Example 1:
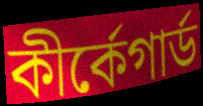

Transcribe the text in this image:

কীর্কেগার্ড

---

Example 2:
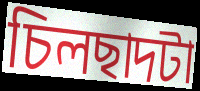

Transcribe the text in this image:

চিলছাদটা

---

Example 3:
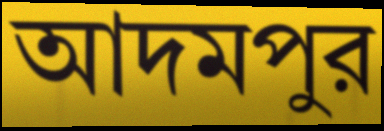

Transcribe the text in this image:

আদমপুর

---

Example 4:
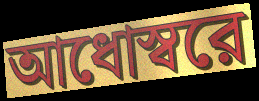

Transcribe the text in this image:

আধোস্বরে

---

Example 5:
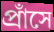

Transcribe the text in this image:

প্রাঁসে